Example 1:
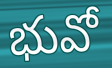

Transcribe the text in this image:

భువో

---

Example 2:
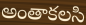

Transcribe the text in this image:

అంతాకలసి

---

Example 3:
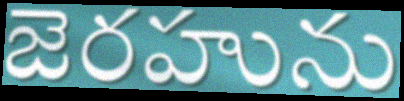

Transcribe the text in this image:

జెరహును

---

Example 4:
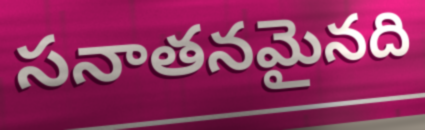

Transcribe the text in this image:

సనాతనమైనది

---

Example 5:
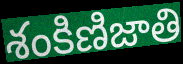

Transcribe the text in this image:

శంకిణిజాతి